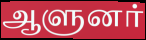
ஆளுனர்